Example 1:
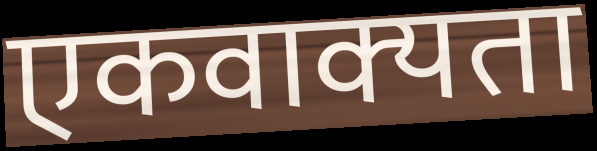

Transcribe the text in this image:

एकवाक्यता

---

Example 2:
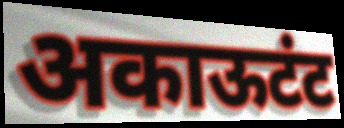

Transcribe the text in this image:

अकाऊटंट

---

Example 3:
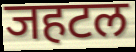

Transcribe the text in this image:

जहटल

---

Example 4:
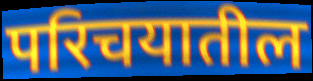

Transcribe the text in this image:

परिचयातील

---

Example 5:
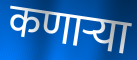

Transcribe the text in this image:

कणाऱ्या